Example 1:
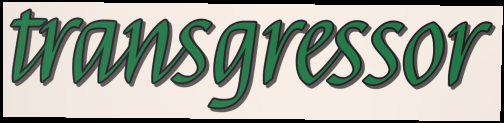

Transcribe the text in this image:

transgressor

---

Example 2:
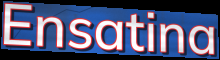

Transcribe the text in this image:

Ensatina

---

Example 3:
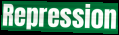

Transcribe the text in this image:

Repression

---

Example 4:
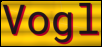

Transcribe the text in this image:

Vogl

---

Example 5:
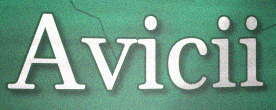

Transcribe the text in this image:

Avicii